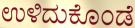
ಉಳಿದುಕೊಂಡೆ